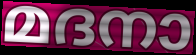
മദനാ